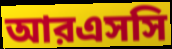
আরএসসি